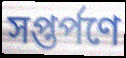
সপ্তর্পণে